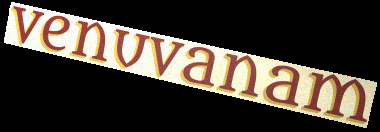
venuvanam